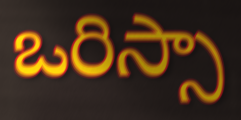
ఒరిస్సా